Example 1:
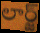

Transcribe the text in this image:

లార్జ్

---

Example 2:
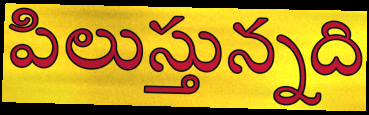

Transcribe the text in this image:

పిలుస్తున్నది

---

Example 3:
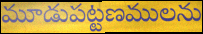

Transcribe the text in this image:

మూడుపట్టణములను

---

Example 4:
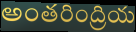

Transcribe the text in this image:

అంతరింద్రియ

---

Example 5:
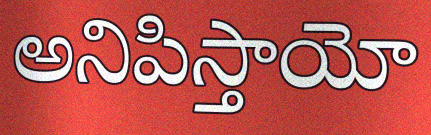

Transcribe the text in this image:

అనిపిస్తాయో